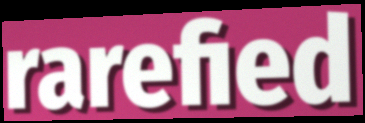
rarefied